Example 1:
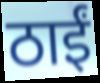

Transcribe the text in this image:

ठाईं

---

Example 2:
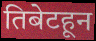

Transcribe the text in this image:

तिबेटहून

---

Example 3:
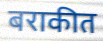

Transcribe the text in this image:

बराकीत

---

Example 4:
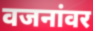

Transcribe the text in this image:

वजनांवर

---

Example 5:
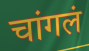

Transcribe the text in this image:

चांगलं